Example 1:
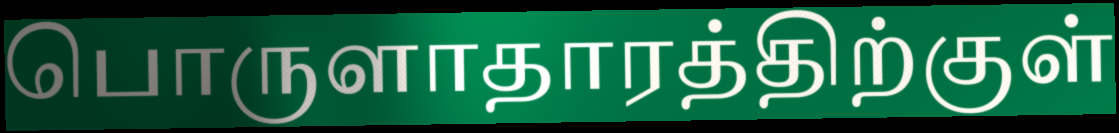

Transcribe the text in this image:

பொருளாதாரத்திற்குள்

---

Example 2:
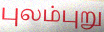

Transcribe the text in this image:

புலம்புறு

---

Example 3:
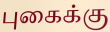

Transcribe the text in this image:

புகைக்கு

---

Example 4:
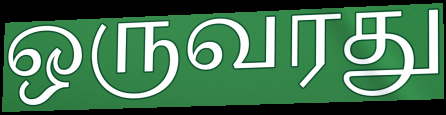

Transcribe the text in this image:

ஒருவரது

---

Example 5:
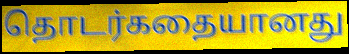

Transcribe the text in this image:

தொடர்கதையானது